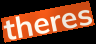
theres